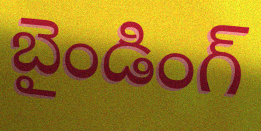
బైండింగ్